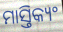
ମାସ୍ତିକ୍ୟଂ